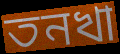
তনখা